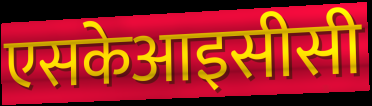
एसकेआइसीसी